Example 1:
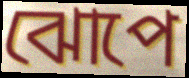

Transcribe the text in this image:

ঝোপে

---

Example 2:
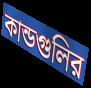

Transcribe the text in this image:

কান্ডগুলির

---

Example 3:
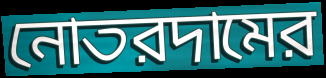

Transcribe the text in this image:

নোতরদামের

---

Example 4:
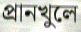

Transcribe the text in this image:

প্রানখুলে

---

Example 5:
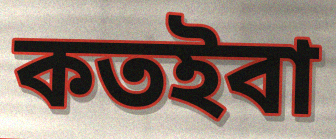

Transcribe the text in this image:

কতইবা